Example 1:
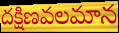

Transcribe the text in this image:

దక్షిణవలమాన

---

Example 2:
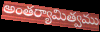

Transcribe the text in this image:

అంతర్యామిత్వము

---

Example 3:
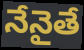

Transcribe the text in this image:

నేనైతే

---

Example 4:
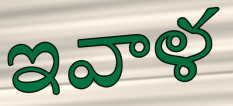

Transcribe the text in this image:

ఇవాళ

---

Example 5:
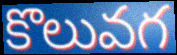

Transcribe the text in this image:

కొలువగ